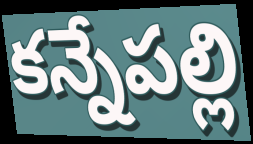
కన్నేపల్లి